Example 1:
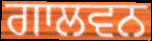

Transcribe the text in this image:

ਗਾਲਵਨ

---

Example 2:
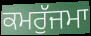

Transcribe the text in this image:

ਕਮਰੁੱਜਮਾ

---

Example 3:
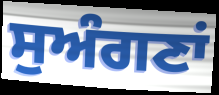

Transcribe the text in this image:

ਸੁਅੰਗਣਾਂ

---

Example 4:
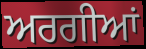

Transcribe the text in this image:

ਅਰਗੀਆਂ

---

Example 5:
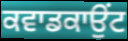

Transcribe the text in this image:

ਕਵਾਡਕਾਉਂਟ